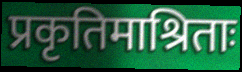
प्रकृतिमाश्रिताः